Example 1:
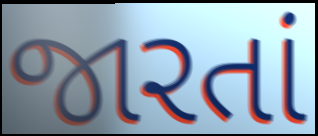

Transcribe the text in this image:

જારતાં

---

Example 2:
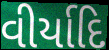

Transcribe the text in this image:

વીર્યાદિ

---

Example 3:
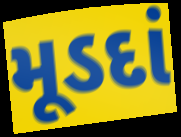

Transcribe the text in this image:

મૂડદાં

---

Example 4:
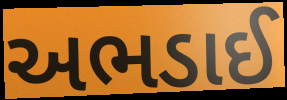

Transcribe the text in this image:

અભડાઈ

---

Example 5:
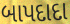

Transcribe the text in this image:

બાપદાદા